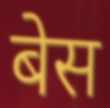
बेस